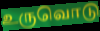
உருவொடு